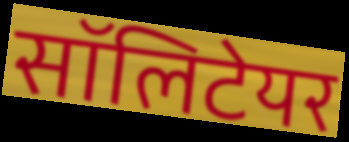
सॉलिटेयर